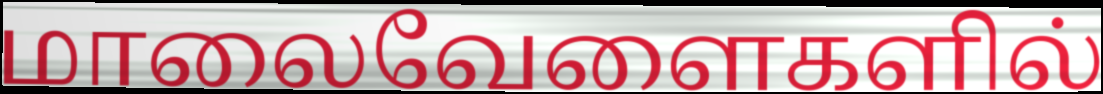
மாலைவேளைகளில்